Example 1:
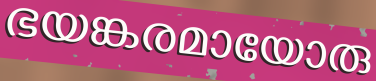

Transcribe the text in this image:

ഭയങ്കരമായോരു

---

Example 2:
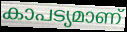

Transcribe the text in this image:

കാപട്യമാണ്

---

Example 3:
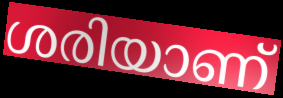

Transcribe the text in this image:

ശരിയാണ്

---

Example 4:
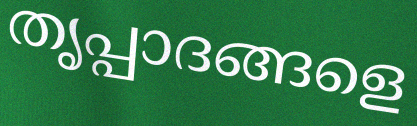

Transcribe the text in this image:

തൃപ്പാദങ്ങളെ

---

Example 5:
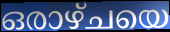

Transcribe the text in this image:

ഒരാഴ്ചയെ